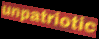
unpatriotic